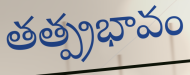
తత్ప్రభావం